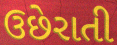
ઉછેરાતી